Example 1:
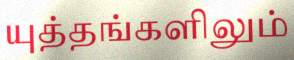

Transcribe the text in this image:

யுத்தங்களிலும்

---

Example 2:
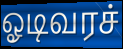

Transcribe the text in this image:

ஓடிவரச்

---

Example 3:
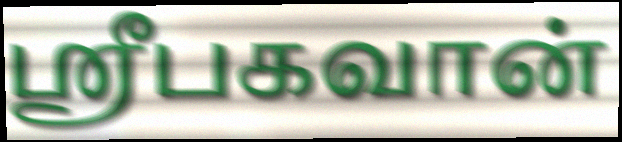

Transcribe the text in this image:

ஸ்ரீபகவான்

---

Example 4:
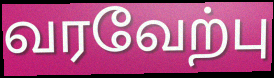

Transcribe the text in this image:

வரவேற்பு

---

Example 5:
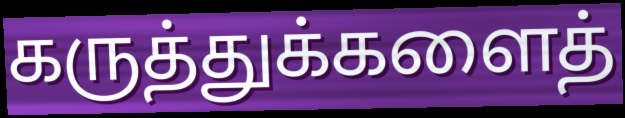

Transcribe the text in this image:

கருத்துக்களைத்